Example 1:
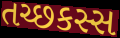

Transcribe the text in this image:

તચ્છકસ્સ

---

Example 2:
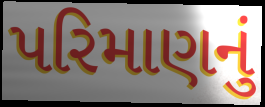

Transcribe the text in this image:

પરિમાણનું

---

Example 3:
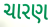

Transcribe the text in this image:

ચારણ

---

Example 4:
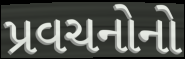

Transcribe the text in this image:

પ્રવચનોનો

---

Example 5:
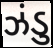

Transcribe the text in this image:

ઝંડુ